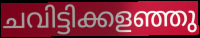
ചവിട്ടിക്കളഞ്ഞു